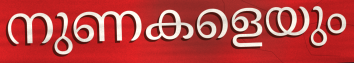
നുണകളെയും